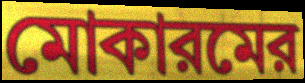
মোকারমের